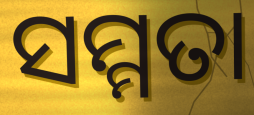
ସମ୍ମତା